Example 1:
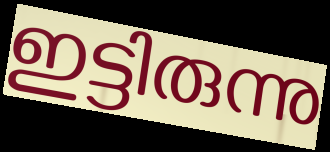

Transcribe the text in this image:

ഇട്ടിരുന്നു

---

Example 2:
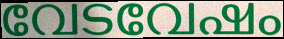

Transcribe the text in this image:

വേടവേഷം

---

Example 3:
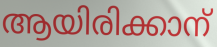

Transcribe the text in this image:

ആയിരിക്കാന്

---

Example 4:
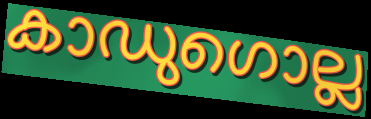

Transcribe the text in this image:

കാഡുഗൊല്ല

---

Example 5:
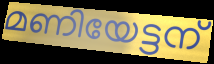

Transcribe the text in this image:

മണിയേട്ടന്